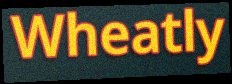
Wheatly